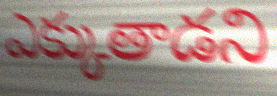
ఎక్కుతాడని